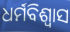
ଧର୍ମବିଶ୍ବାସ